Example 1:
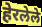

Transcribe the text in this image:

हेरलेले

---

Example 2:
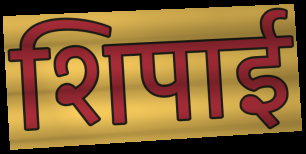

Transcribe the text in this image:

शिपाई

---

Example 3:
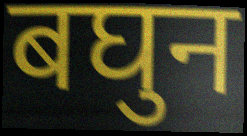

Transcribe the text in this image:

बघुन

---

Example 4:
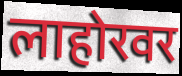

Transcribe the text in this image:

लाहोरवर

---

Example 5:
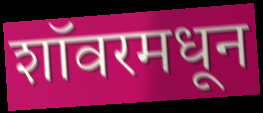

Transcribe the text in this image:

शॉवरमधून